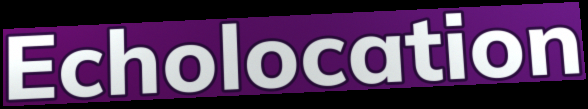
Echolocation